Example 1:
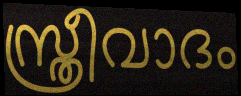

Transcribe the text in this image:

സ്ത്രീവാദം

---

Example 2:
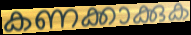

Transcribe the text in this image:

കണക്കാക്കുക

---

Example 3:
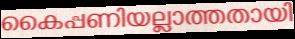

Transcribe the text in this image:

കൈപ്പണിയല്ലാത്തതായി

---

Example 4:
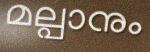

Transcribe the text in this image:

മല്പാനും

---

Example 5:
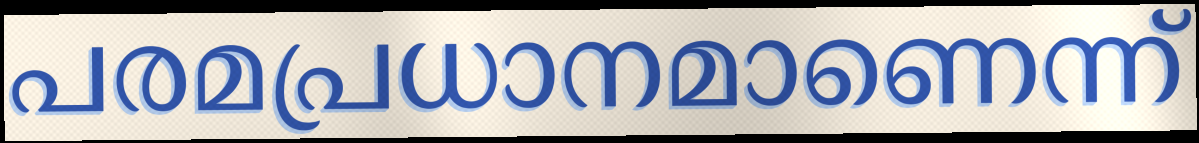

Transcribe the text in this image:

പരമപ്രധാനമാണെന്ന്